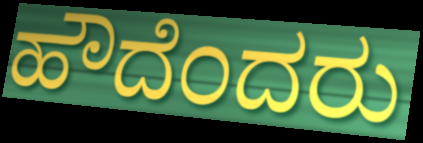
ಹೌದೆಂದರು